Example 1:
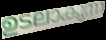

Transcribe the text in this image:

ഉടലാകുന്ന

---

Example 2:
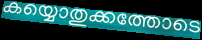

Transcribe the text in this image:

കയ്യൊതുക്കത്തോടെ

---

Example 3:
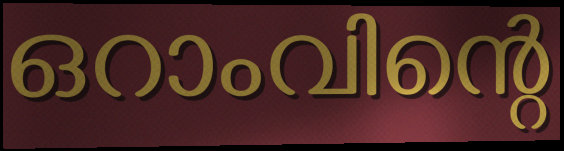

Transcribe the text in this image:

ഒറാംവിന്റെ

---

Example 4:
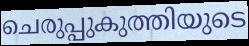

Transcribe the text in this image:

ചെരുപ്പുകുത്തിയുടെ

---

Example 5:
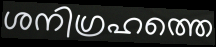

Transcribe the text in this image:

ശനിഗ്രഹത്തെ